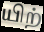
யிற்